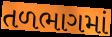
તળભાગમાં